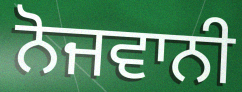
ਨੋਜਵਾਨੀ